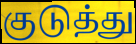
குடுத்து